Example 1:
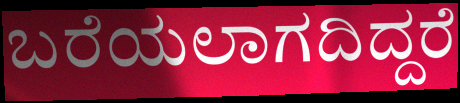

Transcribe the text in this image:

ಬರೆಯಲಾಗದಿದ್ದರೆ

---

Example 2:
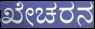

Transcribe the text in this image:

ಖೇಚರನ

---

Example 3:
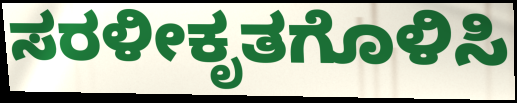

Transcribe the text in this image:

ಸರಳೀಕೃತಗೊಳಿಸಿ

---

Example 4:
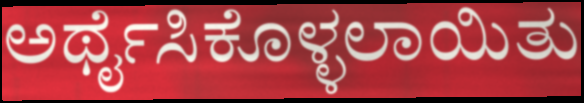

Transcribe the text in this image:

ಅರ್ಥೈಸಿಕೊಳ್ಳಲಾಯಿತು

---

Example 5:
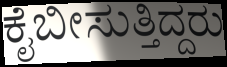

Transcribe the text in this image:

ಕೈಬೀಸುತ್ತಿದ್ದರು